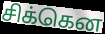
சிக்கென